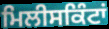
ਮਿਲੀਸਕਿੰਟਾਂ